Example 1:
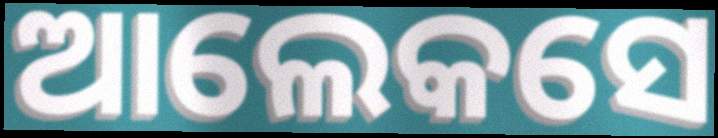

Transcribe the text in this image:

ଆଲେକସେ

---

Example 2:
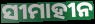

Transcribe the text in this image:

ସୀମାହୀନ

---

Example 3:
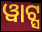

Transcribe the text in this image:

ୱାଟ୍ସ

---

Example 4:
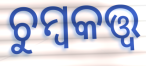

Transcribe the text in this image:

ଚୁମ୍ବକତ୍ତ୍ୱ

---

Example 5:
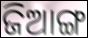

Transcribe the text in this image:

ଜିଆଙ୍ଗ